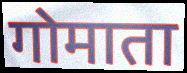
गोमाता